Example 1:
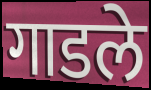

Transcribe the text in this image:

गाडले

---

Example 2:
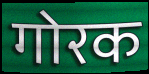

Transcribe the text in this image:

गोरक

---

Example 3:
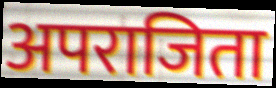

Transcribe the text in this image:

अपराजिता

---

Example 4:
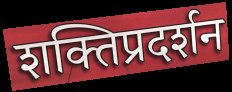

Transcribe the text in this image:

शक्तिप्रदर्शन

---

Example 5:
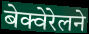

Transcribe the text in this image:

बेक्वेरेलने